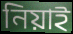
নিয়াই